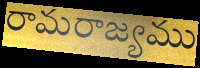
రామరాజ్యము